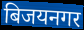
बिजयनगर